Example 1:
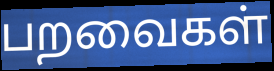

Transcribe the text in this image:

பறவைகள்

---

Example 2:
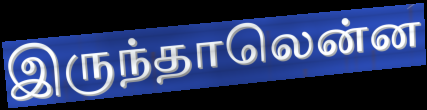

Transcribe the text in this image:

இருந்தாலென்ன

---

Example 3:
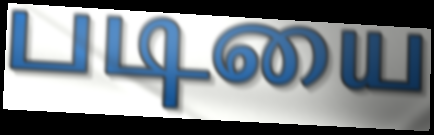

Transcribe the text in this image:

படியை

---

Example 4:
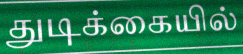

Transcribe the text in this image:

துடிக்கையில்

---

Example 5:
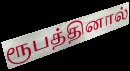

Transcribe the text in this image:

ரூபத்தினால்